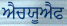
ਐਚਯੂਐਫ